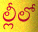
ల్లీలో